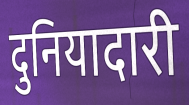
दुनियादारी